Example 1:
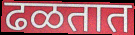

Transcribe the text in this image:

ढळतात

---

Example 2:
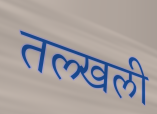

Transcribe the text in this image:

तल्खली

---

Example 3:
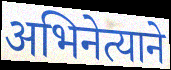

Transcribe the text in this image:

अभिनेत्याने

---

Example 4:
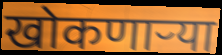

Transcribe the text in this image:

खोकणाऱ्या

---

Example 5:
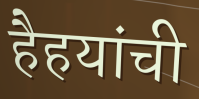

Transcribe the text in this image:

हैहयांची